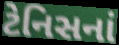
ટેનિસનાં